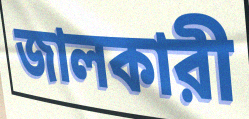
জালকারী